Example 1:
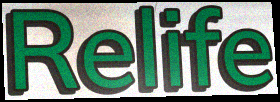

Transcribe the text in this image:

Relife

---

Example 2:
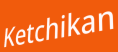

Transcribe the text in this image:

Ketchikan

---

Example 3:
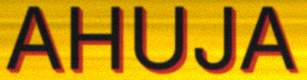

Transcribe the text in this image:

AHUJA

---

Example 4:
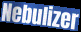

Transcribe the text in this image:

Nebulizer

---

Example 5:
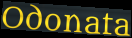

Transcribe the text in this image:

Odonata